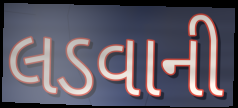
લડવાની